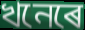
খনেৰে